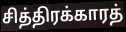
சித்திரக்காரத்